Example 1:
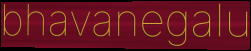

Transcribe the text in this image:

bhavanegalu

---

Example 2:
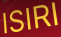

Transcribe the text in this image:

ISIRI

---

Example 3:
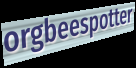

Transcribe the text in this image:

orgbeespotter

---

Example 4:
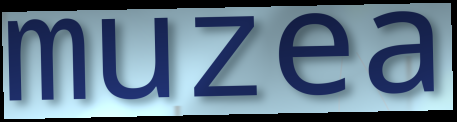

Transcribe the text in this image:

muzea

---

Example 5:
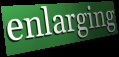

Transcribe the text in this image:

enlarging